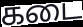
கடை